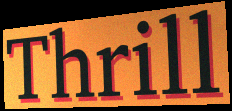
Thrill